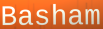
Basham